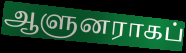
ஆளுனராகப்